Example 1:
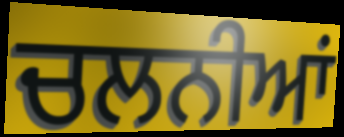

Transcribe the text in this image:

ਚਲਨੀਆਂ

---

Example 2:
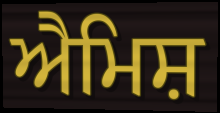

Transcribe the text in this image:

ਐਮਿਸ਼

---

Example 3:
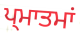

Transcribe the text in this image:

ਪ੍ਮਾਤਮਾਂ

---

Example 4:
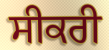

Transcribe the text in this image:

ਸੀਕਰੀ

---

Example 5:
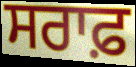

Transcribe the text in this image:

ਸਰਾਫ਼